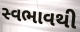
સ્વભાવથી